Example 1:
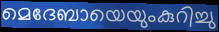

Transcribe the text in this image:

മെദേബായെയുംകുറിച്ചു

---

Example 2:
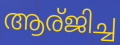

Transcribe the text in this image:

ആര്ജിച്ച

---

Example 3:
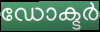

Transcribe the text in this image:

ഡോക്ടർ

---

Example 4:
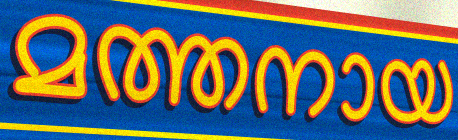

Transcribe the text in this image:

മത്തനായ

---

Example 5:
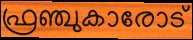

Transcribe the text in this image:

ഫ്രഞ്ചുകാരോട്